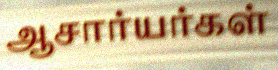
ஆசார்யர்கள்